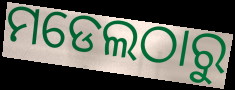
ମଡେଲଠାରୁ